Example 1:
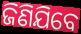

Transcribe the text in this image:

ଜିଣିଯିବେ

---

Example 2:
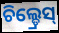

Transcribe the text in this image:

ଚିଲ୍ଡ୍ରେସ୍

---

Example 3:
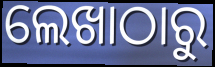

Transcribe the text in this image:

ଲେଖାଠାରୁ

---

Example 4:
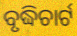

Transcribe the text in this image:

ବୃଦ୍ଧିଚାର୍ଟ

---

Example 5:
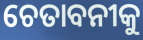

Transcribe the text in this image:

ଚେତାବନୀକୁ